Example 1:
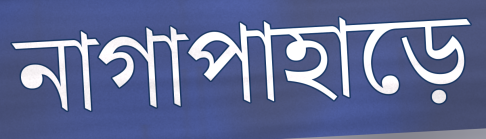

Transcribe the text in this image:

নাগাপাহাড়ে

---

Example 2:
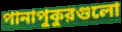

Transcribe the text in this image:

পানাপুকুরগুলো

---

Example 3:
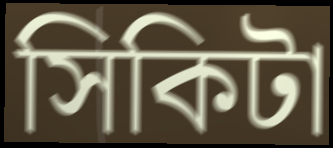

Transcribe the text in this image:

সিকিটা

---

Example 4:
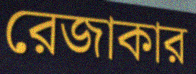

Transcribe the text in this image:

রেজাকার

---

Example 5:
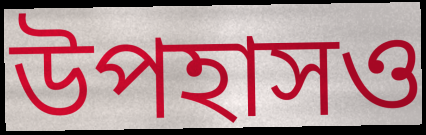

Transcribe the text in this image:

উপহাসও